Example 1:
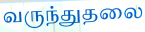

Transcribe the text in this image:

வருந்துதலை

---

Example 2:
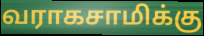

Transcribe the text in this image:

வராகசாமிக்கு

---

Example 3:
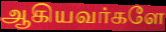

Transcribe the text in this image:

ஆகியவர்களே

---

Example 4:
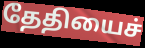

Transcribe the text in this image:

தேதியைச்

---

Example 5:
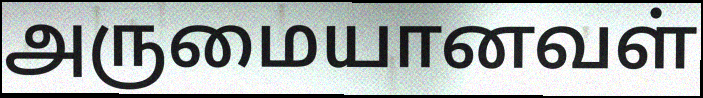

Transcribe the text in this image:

அருமையானவள்